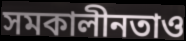
সমকালীনতাও